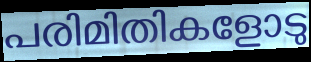
പരിമിതികളോടു